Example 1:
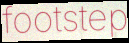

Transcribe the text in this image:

footstep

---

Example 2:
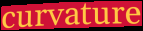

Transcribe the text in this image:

curvature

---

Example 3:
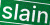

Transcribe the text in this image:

slain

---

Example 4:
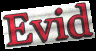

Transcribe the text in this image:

Evid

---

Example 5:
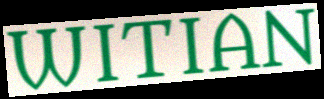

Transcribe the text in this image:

WITIAN